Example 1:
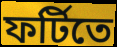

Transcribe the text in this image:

ফর্টিতে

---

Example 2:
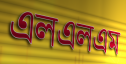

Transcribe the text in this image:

এলএলএম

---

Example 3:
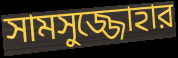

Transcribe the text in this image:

সামসুজ্জোহার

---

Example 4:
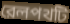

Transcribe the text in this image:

রেলপথটি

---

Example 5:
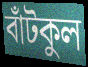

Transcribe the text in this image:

বাঁটকুল